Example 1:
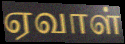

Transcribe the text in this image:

ஏவாள்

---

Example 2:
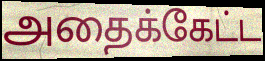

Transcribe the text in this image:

அதைக்கேட்ட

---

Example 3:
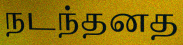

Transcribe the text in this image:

நடந்தனத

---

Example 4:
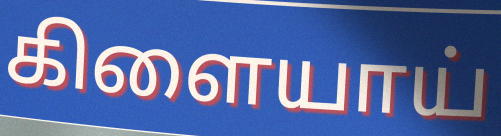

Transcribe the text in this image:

கிளையாய்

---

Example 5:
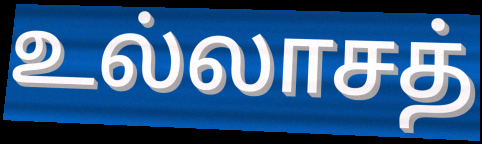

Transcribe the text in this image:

உல்லாசத்